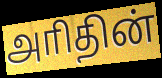
அரிதின்